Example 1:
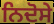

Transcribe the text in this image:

ਨਿਦੋਸੇ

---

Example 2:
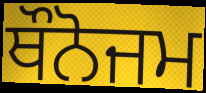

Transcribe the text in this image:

ਥੌਨੋਜਮ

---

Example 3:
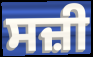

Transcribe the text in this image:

ਸਜ਼ੀ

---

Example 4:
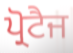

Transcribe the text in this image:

ਪ੍ਰੋਟੈਜ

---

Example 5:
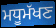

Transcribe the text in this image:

ਮਧੂਮੱਖਣ